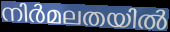
നിർമലതയിൽ